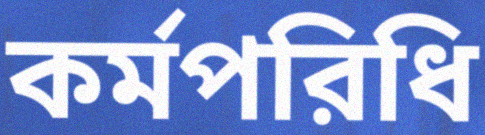
কর্মপরিধি